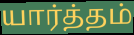
யார்த்தம்